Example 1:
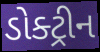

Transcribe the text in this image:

ડોક્ટ્રીન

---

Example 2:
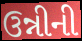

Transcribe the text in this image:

ઉન્નીની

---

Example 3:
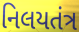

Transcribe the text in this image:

નિલયતંત્ર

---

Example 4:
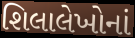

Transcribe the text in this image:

શિલાલેખોનાં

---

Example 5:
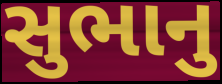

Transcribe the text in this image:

સુભાનુ